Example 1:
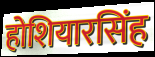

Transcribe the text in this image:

होशियारसिंह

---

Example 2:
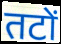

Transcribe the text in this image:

तटों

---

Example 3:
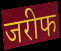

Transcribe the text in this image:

जरीफ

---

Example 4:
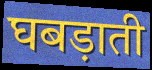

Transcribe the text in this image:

घबड़ाती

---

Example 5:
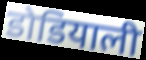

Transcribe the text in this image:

डोडियाली